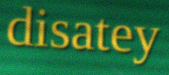
disatey